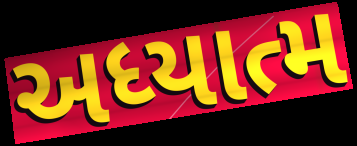
અધ્યાત્મ